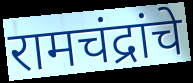
रामचंद्रांचे